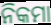
ନିକମା